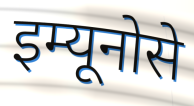
इम्यूनोसे